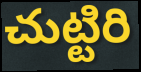
చుట్టిరి